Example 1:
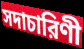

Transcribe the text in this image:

সদাচারিণী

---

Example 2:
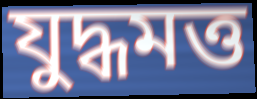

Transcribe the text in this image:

যুদ্ধমত্ত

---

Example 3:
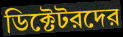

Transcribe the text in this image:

ডিক্টেটরদের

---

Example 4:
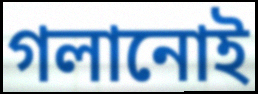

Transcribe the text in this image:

গলানোই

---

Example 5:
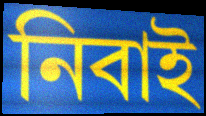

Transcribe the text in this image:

নিবাই